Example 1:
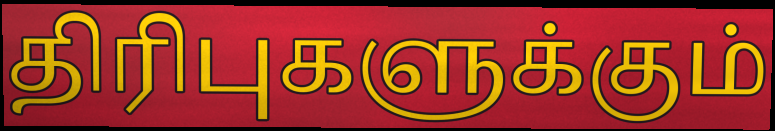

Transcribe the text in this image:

திரிபுகளுக்கும்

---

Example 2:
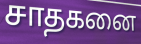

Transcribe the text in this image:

சாதகனை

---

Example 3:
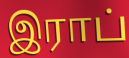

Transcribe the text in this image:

இராப்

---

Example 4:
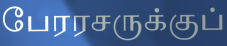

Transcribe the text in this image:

பேரரசருக்குப்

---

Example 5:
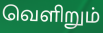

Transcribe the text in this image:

வெளிறும்